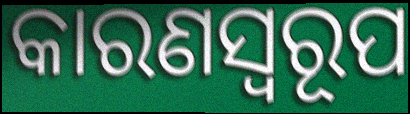
କାରଣସ୍ୱରୂପ